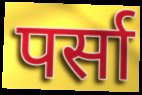
पर्सा